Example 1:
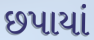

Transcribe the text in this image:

છપાયાં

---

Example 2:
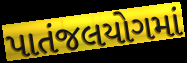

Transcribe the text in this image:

પાતંજલયોગમાં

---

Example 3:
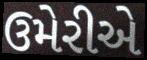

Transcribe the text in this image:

ઉમેરીએ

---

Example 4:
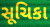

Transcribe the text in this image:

સૂચિકા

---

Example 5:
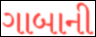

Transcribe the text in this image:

ગાબાની